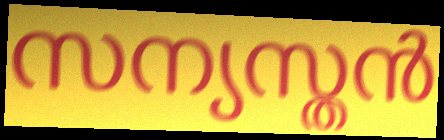
സന്യസ്തൻ